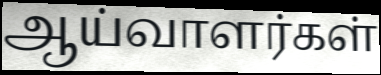
ஆய்வாளர்கள்